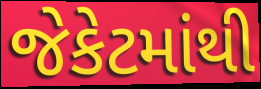
જેકેટમાંથી